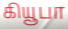
கியூபா